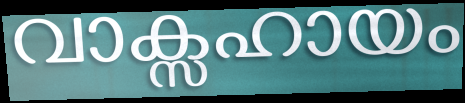
വാക്സഹായം